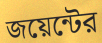
জয়েন্টের